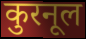
कुरनूल